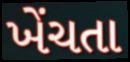
ખેંચતા